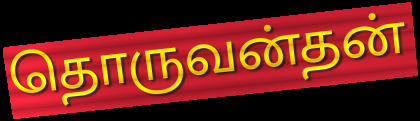
தொருவன்தன்